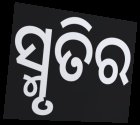
ସ୍ମୃତିର